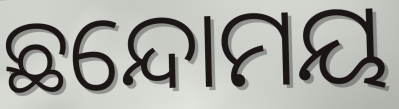
ଛନ୍ଦୋମୟ